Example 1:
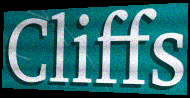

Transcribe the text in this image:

Cliffs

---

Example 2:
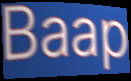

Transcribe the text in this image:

Baap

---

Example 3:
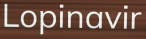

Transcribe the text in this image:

Lopinavir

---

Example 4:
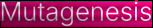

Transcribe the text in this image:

Mutagenesis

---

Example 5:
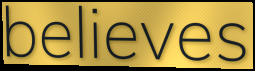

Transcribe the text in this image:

believes